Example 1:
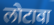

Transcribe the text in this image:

लोटावा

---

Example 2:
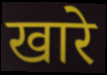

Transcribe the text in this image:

खारे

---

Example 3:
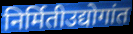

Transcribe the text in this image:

निर्मितीउद्योगांत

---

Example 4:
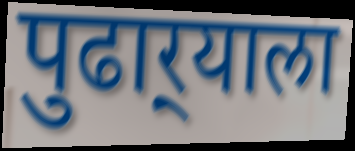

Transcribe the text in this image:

पुढार्याला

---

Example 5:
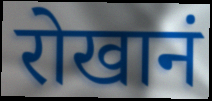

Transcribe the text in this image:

रोखानं